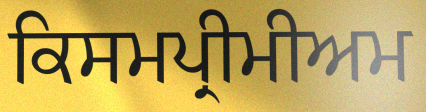
ਕਿਸਮਪ੍ਰੀਮੀਅਮ